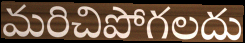
మరిచిపోగలదు